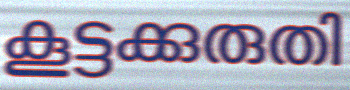
കൂട്ടക്കുരുതി